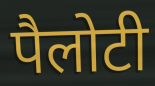
पैलोटी